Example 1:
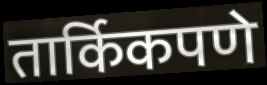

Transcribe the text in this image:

तार्किकपणे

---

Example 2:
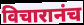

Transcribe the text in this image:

विचारानंच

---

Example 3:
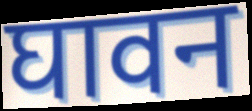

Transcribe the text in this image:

घावन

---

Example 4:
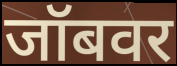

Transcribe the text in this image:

जॉबवर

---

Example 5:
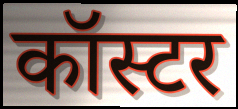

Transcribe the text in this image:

कॉस्टर